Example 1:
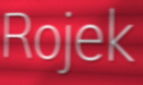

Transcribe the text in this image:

Rojek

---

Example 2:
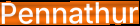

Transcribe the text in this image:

Pennathur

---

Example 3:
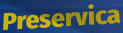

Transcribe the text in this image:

Preservica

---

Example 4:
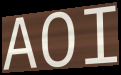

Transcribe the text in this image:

AOI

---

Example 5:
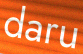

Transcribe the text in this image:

daru